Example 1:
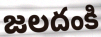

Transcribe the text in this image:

జలదంకి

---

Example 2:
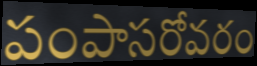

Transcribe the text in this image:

పంపాసరోవరం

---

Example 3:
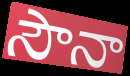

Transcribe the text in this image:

సౌనా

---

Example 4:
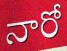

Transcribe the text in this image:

నారో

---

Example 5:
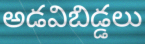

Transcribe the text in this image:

అడవిబిడ్డలు